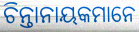
ଚିନ୍ତାନାୟକମାନେ